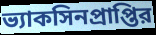
ভ্যাকসিনপ্রাপ্তির